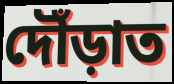
দৌঁড়াত